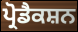
ਪ੍ਰੋਡੈਕਸ਼ਨ